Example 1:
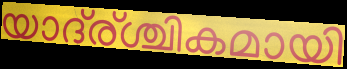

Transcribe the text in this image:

യാദ്ര്ശ്ചികമായി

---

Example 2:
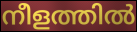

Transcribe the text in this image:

നീളത്തിൽ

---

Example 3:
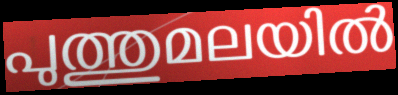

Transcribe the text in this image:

പുത്തുമലയിൽ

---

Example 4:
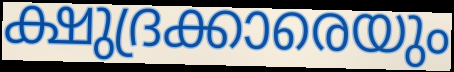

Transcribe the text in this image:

ക്ഷുദ്രക്കാരെയും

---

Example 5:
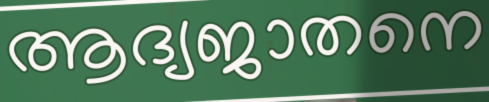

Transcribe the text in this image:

ആദ്യജാതനെ